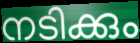
നടിക്കും